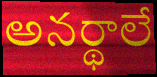
అనర్థాలే